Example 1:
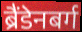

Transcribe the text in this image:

ब्रैंडेनबर्ग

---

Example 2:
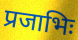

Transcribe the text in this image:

प्रजाभिः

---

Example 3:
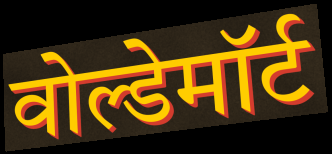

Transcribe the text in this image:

वोल्डेमॉर्ट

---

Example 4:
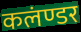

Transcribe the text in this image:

कलंण्डर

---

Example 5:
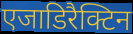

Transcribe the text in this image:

एजाडिरैक्टिन